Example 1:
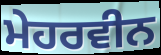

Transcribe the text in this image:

ਮੇਹਰਵੀਨ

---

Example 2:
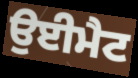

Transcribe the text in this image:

ਉਈਮੈਟ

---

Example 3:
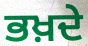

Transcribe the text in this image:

ਭਖ਼ਦੇ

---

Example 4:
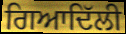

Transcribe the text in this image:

ਗਿਆਦਿੱਲੀ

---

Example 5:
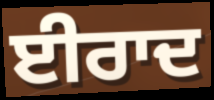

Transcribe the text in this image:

ਈਰਾਦ